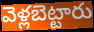
వెళ్లబెట్టారు